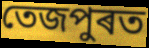
তেজপুৰত